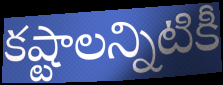
కష్టాలన్నిటికీ